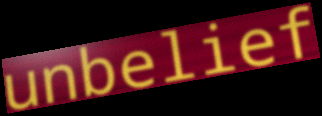
unbelief